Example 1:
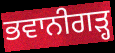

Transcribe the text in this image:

ਭਵਾਨੀਗੜ੍ਹ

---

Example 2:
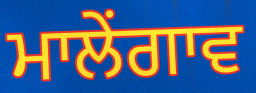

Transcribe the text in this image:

ਮਾਲੇਂਗਾਵ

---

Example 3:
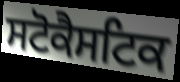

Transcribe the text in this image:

ਸਟੋਕੈਸਟਿਕ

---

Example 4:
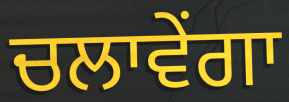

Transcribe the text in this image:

ਚਲਾਵੇਂਗਾ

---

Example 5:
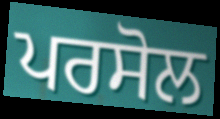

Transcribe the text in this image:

ਪਰਸੋਲ